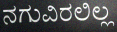
ನಗುವಿರಲಿಲ್ಲ